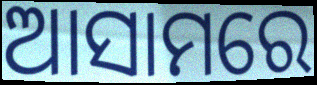
ଆସାମରେ